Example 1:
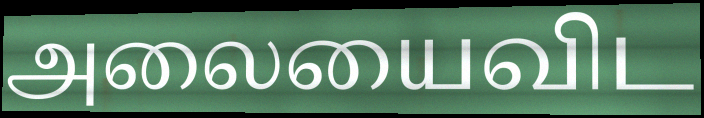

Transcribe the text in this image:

அலையைவிட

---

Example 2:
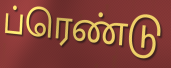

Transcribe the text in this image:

ப்ரெண்டு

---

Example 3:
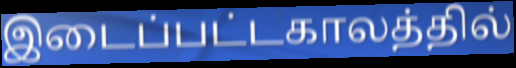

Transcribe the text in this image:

இடைப்பட்டகாலத்தில்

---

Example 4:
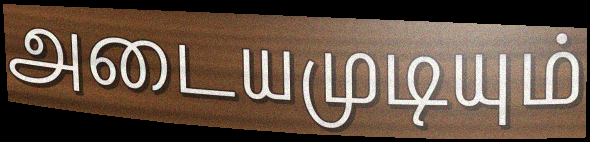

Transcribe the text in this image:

அடையமுடியும்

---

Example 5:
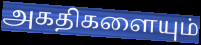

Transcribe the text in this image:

அகதிகளையும்